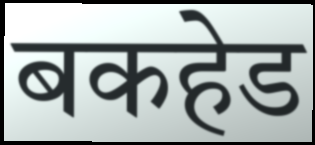
बकहेड